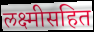
लक्ष्मीसहित